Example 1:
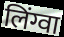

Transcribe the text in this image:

लिंग्वा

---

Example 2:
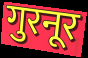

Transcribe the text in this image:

गुरनूर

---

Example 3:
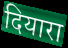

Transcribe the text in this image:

दियारा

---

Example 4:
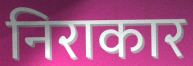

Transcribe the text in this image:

निराकार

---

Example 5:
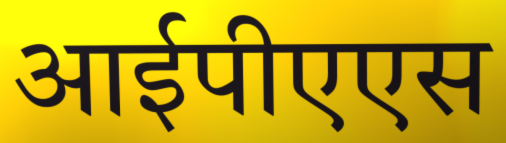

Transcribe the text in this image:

आईपीएएस